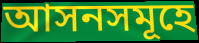
আসনসমূহে